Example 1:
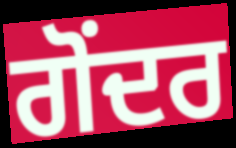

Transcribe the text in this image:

ਗੋਂਦਰ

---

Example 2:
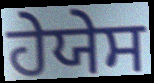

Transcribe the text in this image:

ਹੇਯੇਸ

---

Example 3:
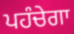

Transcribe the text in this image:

ਪਹੰਚੇਗਾ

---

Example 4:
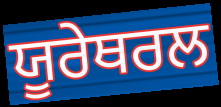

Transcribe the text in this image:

ਯੂਰੇਥਰਲ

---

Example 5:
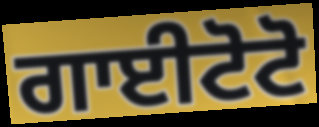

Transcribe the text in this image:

ਗਾਈਟੋਟੋ